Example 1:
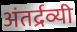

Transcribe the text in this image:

अंतर्द्रव्यी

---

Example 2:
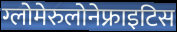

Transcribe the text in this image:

ग्लोमेरुलोनेफ्राइटिस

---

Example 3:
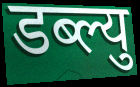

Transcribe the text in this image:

डब्ल्यु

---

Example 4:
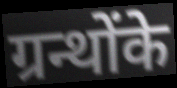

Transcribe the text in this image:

ग्रन्थोंके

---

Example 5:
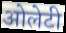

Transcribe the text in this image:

ओलेटी